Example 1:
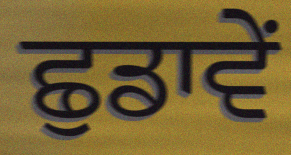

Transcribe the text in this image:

ਛੁਡਾਵੇਂ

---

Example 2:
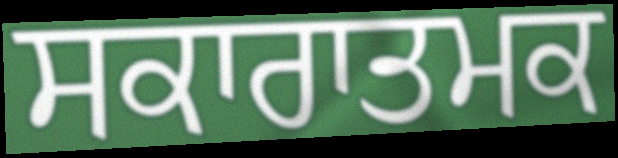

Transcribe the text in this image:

ਸਕਾਰਾਤਮਕ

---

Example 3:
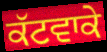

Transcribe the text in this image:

ਕੱਟਵਾਕੇ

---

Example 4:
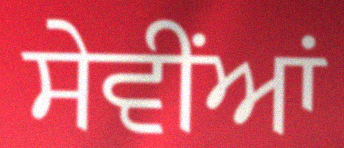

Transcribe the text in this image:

ਸੇਵੀਂਆਂ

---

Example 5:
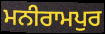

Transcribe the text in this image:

ਮਨੀਰਾਮਪੁਰ